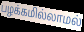
பழக்கமில்லாமல்